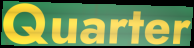
Quarter